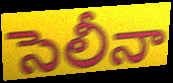
సెలీనా